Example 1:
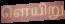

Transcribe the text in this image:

ளெயிறு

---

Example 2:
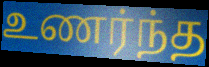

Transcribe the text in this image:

உணர்ந்த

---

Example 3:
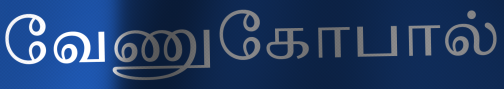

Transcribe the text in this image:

வேணுகோபால்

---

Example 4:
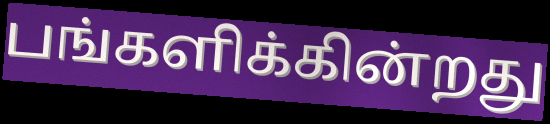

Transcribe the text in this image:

பங்களிக்கின்றது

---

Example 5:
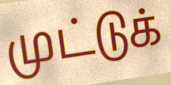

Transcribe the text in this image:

முட்டுக்